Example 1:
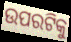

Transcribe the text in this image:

ଉପରଟିକୁ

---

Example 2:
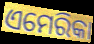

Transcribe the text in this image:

ଏମେରିକା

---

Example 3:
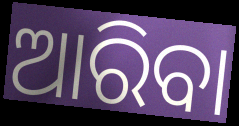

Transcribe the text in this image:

ଆରିବା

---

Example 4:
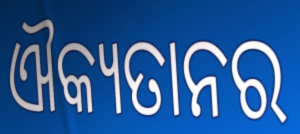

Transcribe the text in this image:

ଐକ୍ୟତାନର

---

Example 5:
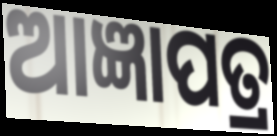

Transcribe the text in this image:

ଆଜ୍ଞାପତ୍ର